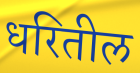
धरितील